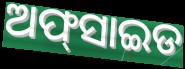
ଅଫ୍‍ସାଇଡ